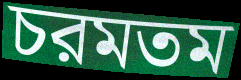
চরমতম